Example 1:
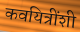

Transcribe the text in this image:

कवयित्रींशी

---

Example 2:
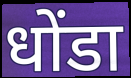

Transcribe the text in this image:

धोंडा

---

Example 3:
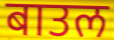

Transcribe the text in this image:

बाउल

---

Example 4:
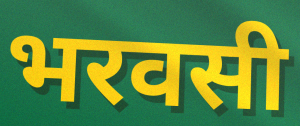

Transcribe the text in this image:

भरवसी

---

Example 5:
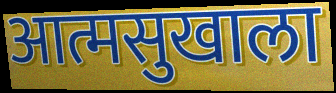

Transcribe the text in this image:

आत्मसुखाला